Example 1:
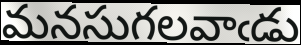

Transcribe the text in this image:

మనసుగలవాఁడు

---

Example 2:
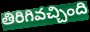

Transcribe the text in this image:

తిరిగివచ్చింది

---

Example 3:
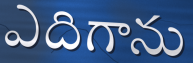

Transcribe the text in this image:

ఎదిగాను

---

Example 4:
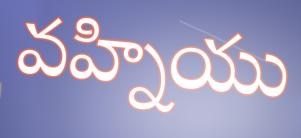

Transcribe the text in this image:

వహ్నియు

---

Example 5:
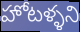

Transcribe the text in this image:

హోటళ్ళని